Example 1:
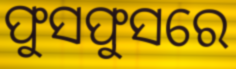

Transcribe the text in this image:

ଫୁସଫୁସରେ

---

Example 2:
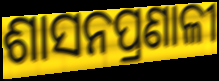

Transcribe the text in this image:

ଶାସନପ୍ରଣାଳୀ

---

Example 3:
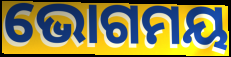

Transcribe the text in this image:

ଭୋଗମୟ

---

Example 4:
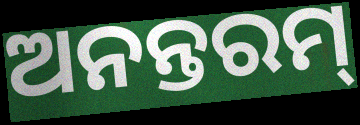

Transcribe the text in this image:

ଅନନ୍ତରମ୍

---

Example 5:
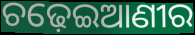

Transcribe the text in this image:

ଚଢ଼େଇଆଣୀର